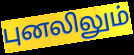
புனலிலும்